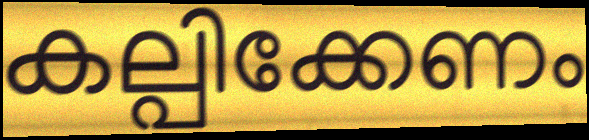
കല്പിക്കേണം